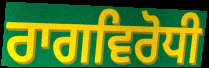
ਰਾਗਵਿਰੋਧੀ